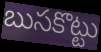
బుసకొట్టు